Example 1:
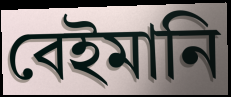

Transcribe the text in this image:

বেইমানি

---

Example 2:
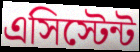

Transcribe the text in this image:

এসিস্টেন্ট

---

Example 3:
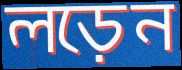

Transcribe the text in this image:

লড়েন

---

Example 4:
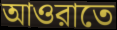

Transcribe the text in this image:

আওরাতে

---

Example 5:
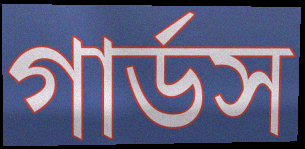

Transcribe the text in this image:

গার্ডস